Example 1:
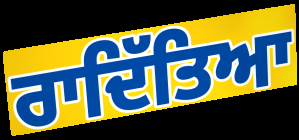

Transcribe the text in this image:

ਰਾਦਿੱਤਿਆ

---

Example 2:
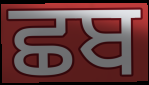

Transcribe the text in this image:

ਛਬ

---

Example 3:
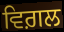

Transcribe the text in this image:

ਵਿਗ਼ਲ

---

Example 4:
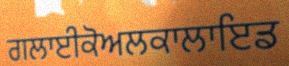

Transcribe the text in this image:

ਗਲਾਈਕੋਅਲਕਾਲਾਇਡ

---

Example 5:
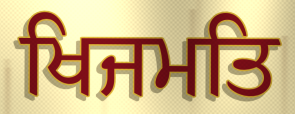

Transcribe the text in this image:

ਖਿਜਮਤਿ